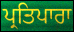
ਪ੍ਰਤਿਪਾਰਾ